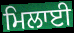
ਮਿਲਾਈ